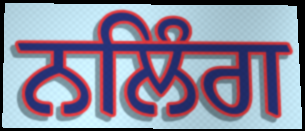
ਨਲਿੰਗ